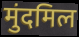
मुंदमिल